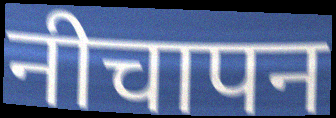
नीचापन